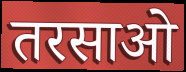
तरसाओ